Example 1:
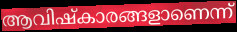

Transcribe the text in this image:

ആവിഷ്കാരങ്ങളാണെന്ന്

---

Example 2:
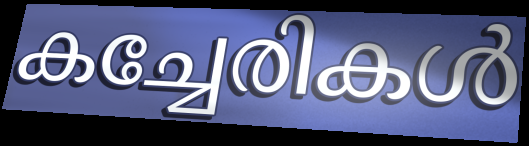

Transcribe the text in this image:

കച്ചേരികൾ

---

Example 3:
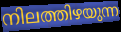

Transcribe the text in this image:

നിലത്തിഴയുന്ന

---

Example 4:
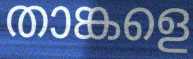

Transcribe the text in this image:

താങ്കളെ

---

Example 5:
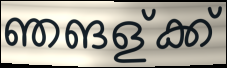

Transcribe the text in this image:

ഞങള്ക്ക്